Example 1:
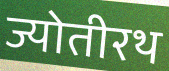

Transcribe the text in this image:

ज्योतीरथ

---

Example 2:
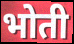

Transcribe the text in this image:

भोती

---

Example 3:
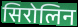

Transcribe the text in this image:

सिरोलिन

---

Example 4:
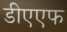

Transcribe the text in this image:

डीएएफ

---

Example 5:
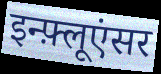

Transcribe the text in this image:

इन्फ़्लूएंसर